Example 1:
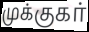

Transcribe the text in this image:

முக்குகர்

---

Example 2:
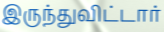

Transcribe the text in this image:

இருந்துவிட்டார்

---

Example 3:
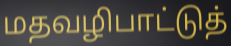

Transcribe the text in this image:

மதவழிபாட்டுத்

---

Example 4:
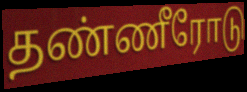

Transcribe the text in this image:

தண்ணீரோடு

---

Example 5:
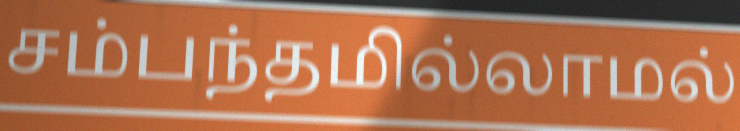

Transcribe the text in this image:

சம்பந்தமில்லாமல்